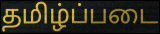
தமிழ்ப்படை